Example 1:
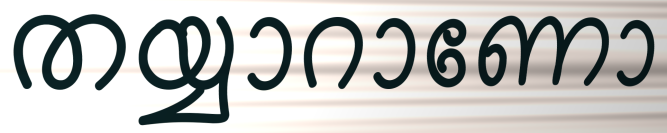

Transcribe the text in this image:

തയ്യാറാണോ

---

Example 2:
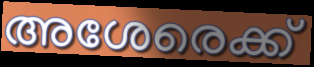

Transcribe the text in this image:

അശേരെക്ക്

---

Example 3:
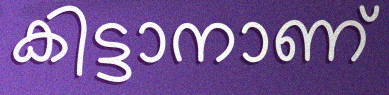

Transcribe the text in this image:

കിട്ടാനാണ്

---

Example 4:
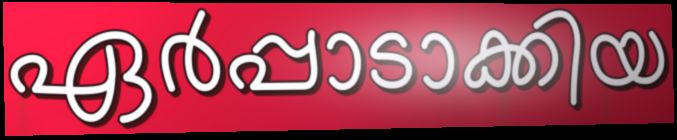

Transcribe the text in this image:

ഏർപ്പാടാക്കിയ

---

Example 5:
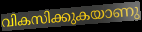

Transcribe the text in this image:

വികസിക്കുകയാണു